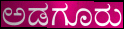
ಅಡಗೂರು